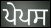
ਪੇਪਸ